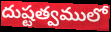
దుష్టత్వములో